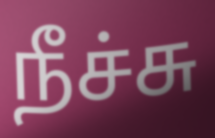
நீச்சு